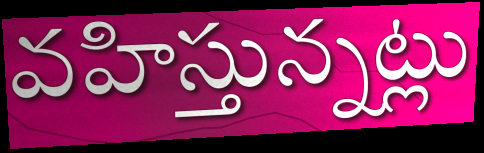
వహిస్తున్నట్లు